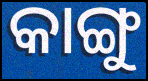
କାଙ୍ଗୁ